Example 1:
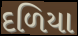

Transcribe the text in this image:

દળિયા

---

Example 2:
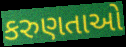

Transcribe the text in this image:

કરુણતાઓ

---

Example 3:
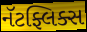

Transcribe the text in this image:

નૅટફ્લિક્સ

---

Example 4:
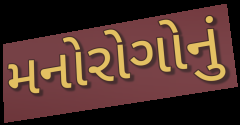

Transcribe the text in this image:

મનોરોગોનું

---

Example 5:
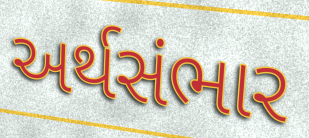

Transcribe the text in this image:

અર્થસંભાર